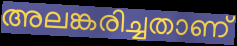
അലങ്കരിച്ചതാണ്